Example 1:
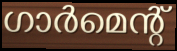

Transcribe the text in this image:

ഗാർമെന്റ്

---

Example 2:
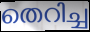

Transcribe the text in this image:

തെറിച്ച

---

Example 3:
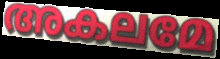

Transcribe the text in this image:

അകലമേ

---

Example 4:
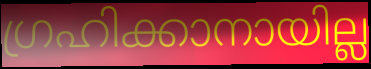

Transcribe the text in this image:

ഗ്രഹിക്കാനായില്ല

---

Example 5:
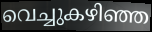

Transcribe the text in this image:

വെച്ചുകഴിഞ്ഞ